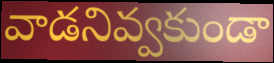
వాడనివ్వకుండా